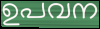
ഉപവന